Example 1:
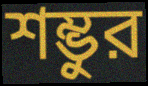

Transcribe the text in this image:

শম্ভুর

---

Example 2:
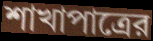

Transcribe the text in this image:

শাখাপাত্রের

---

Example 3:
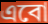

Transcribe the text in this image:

এবো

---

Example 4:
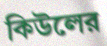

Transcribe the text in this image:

কিউলের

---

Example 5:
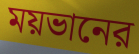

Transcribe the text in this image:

ময়ভানের